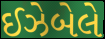
ઈઝેબેલે